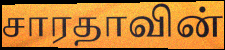
சாரதாவின்